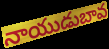
నాయుడుబావ